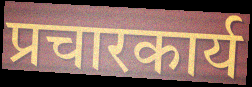
प्रचारकार्य